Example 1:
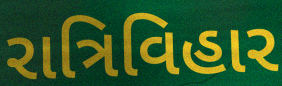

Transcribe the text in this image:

રાત્રિવિહાર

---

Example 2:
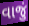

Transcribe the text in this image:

વાજું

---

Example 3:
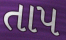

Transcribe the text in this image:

તાપ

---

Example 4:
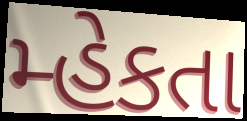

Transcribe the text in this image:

મ્હેકતા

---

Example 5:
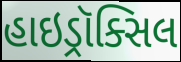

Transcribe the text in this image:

હાઇડ્રૉક્સિલ